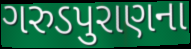
ગરુડપુરાણના